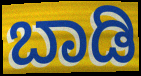
ಬಾಡಿ